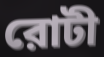
রোটী